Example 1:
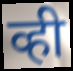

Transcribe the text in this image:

व्ही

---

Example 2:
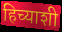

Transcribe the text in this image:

हिच्याशी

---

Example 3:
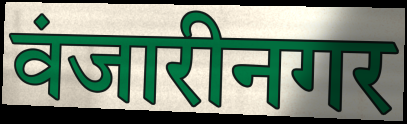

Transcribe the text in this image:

वंजारीनगर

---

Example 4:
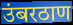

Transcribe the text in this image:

उंबरठाण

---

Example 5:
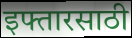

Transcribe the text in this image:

इफ्तारसाठी